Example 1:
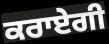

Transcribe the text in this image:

ਕਰਾਏਗੀ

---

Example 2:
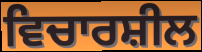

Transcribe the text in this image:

ਵਿਚਾਰਸ਼ੀਲ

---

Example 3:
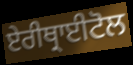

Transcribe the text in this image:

ਏਰੀਥ੍ਰਾਈਟੋਲ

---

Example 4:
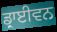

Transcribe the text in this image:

ਡ੍ਰਾਈਵਨ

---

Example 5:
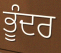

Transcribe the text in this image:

ਭੂੰਦਰ